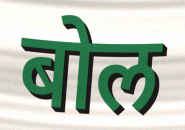
बोल